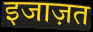
इजाज़त